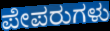
ಪೇಪರುಗಳು